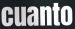
cuanto